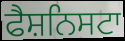
ਫੈਸ਼ਨਿਸਟਾ